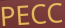
PECC